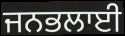
ਜਨਭਲਾਈ